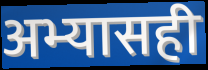
अभ्यासही